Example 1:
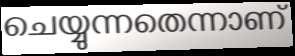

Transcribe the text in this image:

ചെയ്യുന്നതെന്നാണ്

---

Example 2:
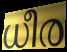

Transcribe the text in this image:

ധീര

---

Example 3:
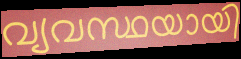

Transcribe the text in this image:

വ്യവസ്ഥയായി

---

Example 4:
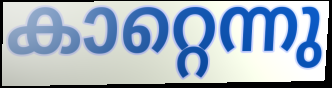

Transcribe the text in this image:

കാറ്റെന്നു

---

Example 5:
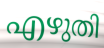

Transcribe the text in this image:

എഴുതി